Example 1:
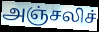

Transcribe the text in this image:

அஞ்சலிச்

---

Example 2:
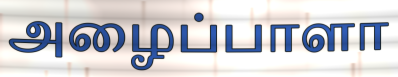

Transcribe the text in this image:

அழைப்பாளா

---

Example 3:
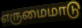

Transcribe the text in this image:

எருமைமாடு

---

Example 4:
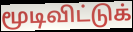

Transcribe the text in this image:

மூடிவிட்டுக்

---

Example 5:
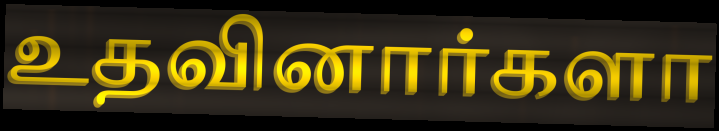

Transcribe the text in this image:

உதவினார்களா